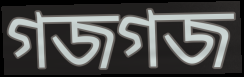
গজগজ